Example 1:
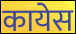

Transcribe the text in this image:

कायेस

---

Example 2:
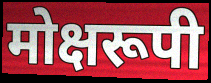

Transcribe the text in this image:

मोक्षरूपी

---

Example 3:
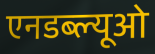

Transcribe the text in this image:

एनडब्ल्यूओ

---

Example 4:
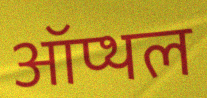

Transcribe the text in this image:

ऑप्थल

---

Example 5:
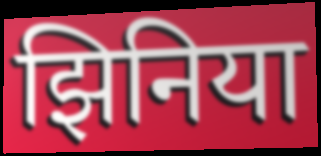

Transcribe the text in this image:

झिनिया